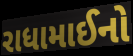
રાધામાઈનો